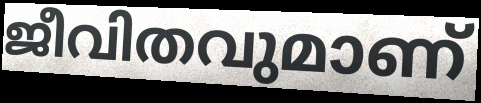
ജീവിതവുമാണ്